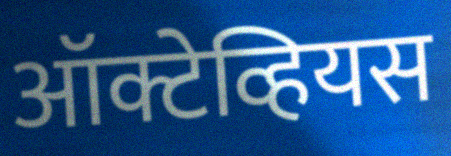
ऑक्टेव्हियस